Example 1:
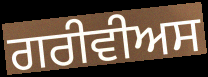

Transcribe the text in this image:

ਗਰੀਵੀਅਸ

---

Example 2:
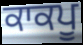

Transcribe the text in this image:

ਕਾਕਪੂ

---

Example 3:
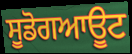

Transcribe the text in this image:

ਸੂਡੋਗਆਊਟ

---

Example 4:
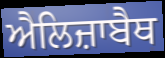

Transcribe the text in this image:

ਐਲਿਜ਼ਾਬੈਥ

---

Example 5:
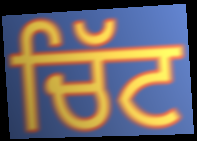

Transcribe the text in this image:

ਚਿੱਟ